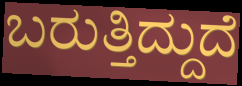
ಬರುತ್ತಿದ್ದುದೆ